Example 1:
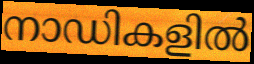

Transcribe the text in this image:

നാഡികളിൽ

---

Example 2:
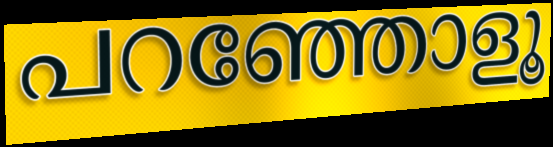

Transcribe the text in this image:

പറഞ്ഞോളൂ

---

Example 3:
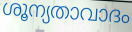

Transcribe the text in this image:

ശൂന്യതാവാദം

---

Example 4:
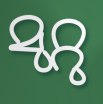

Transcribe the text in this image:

മുറ്റു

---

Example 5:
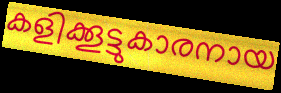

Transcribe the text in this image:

കളിക്കൂട്ടുകാരനായ